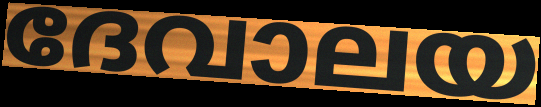
ദേവാലയ